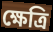
ক্ষেত্রি